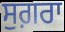
ਸੁਗ਼ਰਾ